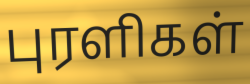
புரளிகள்